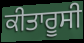
ਕੀਤਾਰੂਸੀ